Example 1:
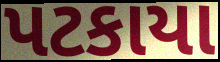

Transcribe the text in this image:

પટકાયા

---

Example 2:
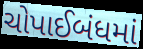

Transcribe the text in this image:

ચોપાઈબંધમાં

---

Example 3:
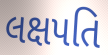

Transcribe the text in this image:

લક્ષપતિ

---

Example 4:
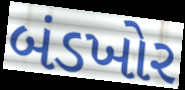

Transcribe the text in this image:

બંડખોર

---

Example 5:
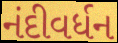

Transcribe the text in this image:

નંદીવર્ધન